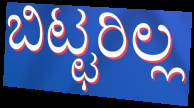
ಬಿಟ್ಟರಿಲ್ಲ